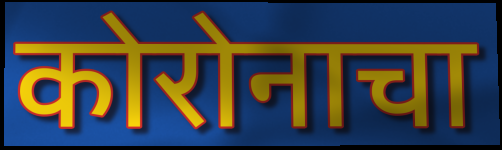
कोरोनाचा